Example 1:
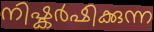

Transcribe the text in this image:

നിഷ്കർഷിക്കുന്ന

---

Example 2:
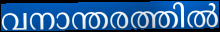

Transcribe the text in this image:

വനാന്തരത്തിൽ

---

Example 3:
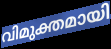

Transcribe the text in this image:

വിമുക്തമായി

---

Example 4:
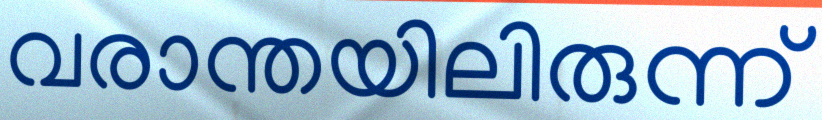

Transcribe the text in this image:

വരാന്തയിലിരുന്ന്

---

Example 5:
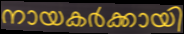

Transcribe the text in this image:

നായകർക്കായി